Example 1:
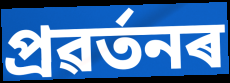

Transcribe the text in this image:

প্ৰৱৰ্তনৰ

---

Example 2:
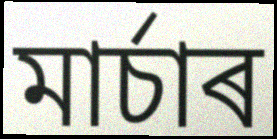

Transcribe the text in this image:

মাৰ্চাৰ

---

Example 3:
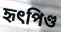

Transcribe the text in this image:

হৃৎপিণ্ড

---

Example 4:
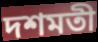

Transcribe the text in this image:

দশমতী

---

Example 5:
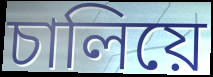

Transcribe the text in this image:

চালিয়ে